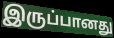
இருப்பானது